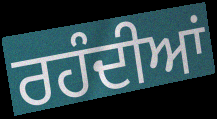
ਰਹੰਦੀਆਂ